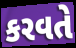
કરવતે